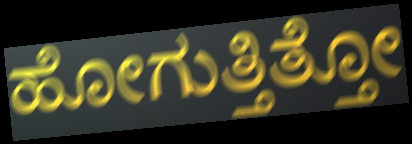
ಹೋಗುತ್ತಿತ್ತೋ